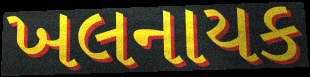
ખલનાયક